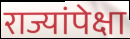
राज्यांपेक्षा